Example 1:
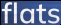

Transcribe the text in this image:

flats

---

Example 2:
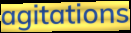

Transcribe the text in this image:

agitations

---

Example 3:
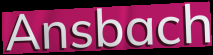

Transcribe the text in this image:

Ansbach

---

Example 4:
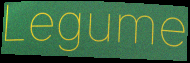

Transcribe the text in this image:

Legume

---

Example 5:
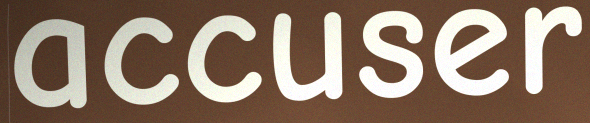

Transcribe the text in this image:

accuser